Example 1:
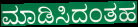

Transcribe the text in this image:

ಮಾಡಿಸಿದಂತಹ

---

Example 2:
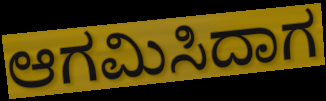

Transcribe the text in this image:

ಆಗಮಿಸಿದಾಗ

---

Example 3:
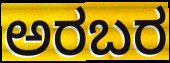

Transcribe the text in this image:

ಅರಬರ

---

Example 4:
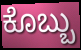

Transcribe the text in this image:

ಕೊಬ್ಬು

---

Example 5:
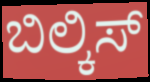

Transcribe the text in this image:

ಬಿಲ್ಕಿಸ್